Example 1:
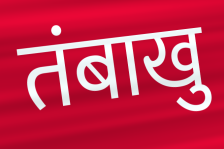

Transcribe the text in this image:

तंबाखु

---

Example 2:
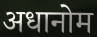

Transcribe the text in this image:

अधानोम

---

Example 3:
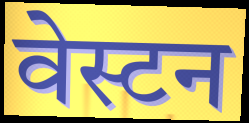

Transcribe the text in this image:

वेस्टन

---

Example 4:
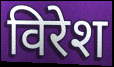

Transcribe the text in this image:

विरेश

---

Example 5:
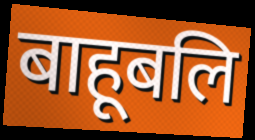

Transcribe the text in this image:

बाहूबलि